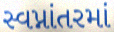
સ્વપ્નાંતરમાં